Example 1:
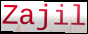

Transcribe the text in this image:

Zajil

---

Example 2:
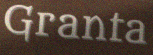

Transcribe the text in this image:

Granta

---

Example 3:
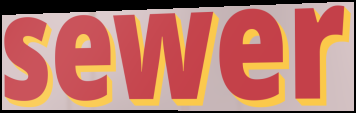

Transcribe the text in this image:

sewer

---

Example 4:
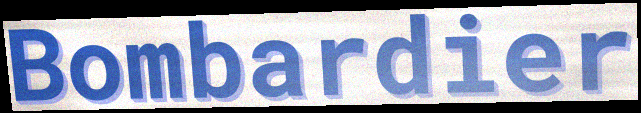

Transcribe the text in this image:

Bombardier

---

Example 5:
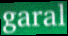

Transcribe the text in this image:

garal